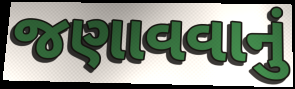
જણાવવાનું